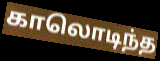
காலொடிந்த